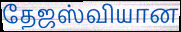
தேஜஸ்வியான